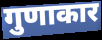
गुणाकार